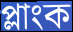
প্লাংক